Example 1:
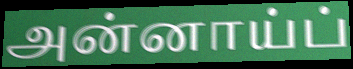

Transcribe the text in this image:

அன்னாய்ப்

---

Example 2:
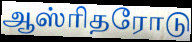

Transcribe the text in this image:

ஆஸ்ரிதரோடு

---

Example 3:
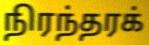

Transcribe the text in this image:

நிரந்தரக்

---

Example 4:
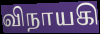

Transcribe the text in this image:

விநாயகி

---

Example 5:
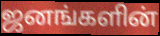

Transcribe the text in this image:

ஜனங்களின்